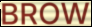
BROW